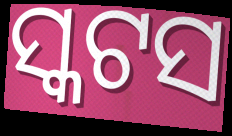
ସ୍କଟସ